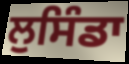
ਲੁਸਿੰਡਾ